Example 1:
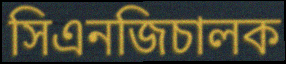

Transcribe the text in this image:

সিএনজিচালক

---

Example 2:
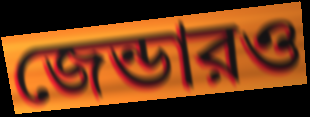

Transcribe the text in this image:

জেন্ডারও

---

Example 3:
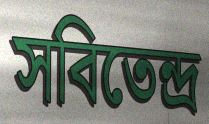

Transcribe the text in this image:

সবিতেন্দ্র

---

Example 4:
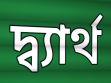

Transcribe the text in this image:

দ্ব্যার্থ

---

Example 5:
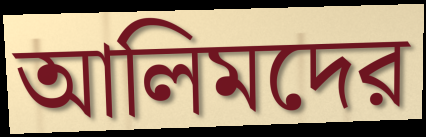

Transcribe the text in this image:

আলিমদের